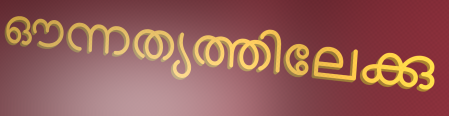
ഔന്നത്യത്തിലേക്കു